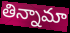
తిన్నామా